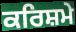
ਕਰਿਸ਼ਮੇ